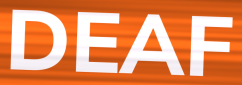
DEAF